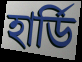
হাৰ্ডি